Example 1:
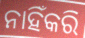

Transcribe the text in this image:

ନାହିଁକରି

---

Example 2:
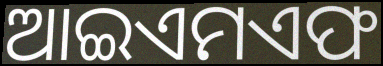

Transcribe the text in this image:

ଆଇଏମଏଫ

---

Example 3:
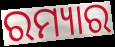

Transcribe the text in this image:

ରମ୍ୟାର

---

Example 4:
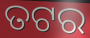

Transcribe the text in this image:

ତଟର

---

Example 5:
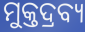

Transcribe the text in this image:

ମୁକ୍ତଦ୍ରବ୍ୟ